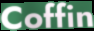
Coffin